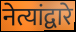
नेत्यांद्वारे